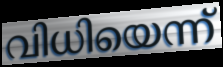
വിധിയെന്ന്